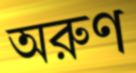
অরুণ